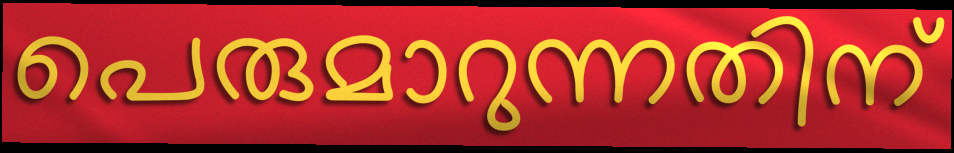
പെരുമാറുന്നതിന്